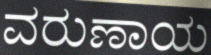
ವರುಣಾಯ